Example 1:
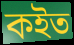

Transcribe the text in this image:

কইত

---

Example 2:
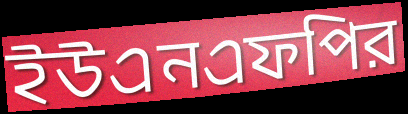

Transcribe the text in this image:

ইউএনএফপির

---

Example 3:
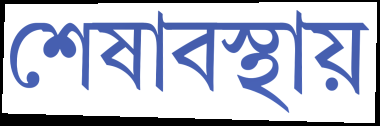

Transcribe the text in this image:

শেষাবস্থায়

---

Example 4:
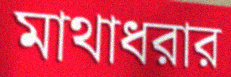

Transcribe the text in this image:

মাথাধরার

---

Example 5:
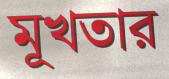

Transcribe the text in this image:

মূখতার